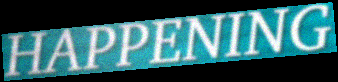
HAPPENING